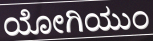
ಯೋಗಿಯುಂ